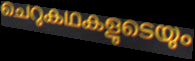
ചെറുകഥകളുടെയും